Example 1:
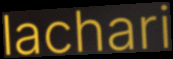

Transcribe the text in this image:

lachari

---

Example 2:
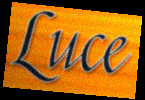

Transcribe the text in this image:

Luce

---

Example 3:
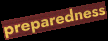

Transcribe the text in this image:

preparedness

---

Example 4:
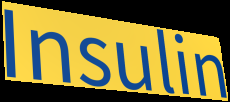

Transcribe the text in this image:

Insulin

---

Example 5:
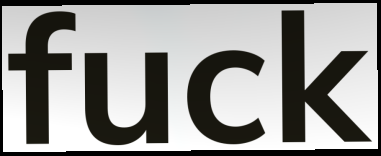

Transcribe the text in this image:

fuck